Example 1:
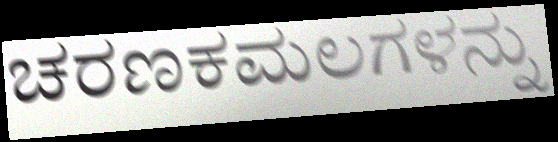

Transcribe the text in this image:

ಚರಣಕಮಲಗಳನ್ನು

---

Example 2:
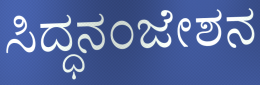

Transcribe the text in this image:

ಸಿದ್ಧನಂಜೇಶನ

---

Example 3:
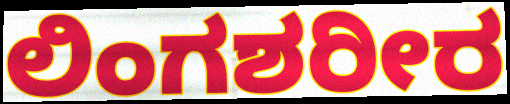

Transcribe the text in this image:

ಲಿಂಗಶರೀರ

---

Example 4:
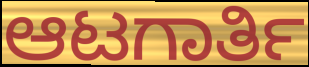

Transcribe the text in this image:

ಆಟಗಾರ್ತಿ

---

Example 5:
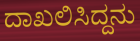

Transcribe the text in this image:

ದಾಖಲಿಸಿದ್ದನು